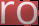
ro